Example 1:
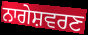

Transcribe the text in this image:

ਨਾਗੇਸ਼ਵਰਣ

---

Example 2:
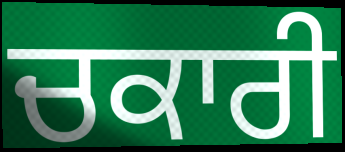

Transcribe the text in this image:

ਚਕਾਰੀ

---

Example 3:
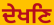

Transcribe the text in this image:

ਦੇਖਣਿ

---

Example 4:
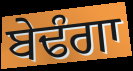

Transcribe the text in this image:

ਬੇਢੰਗਾ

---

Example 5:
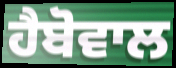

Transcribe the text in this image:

ਹੈਬੋਵਾਲ